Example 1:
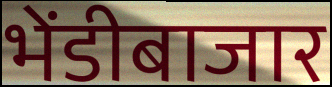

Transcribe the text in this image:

भेंडीबाजार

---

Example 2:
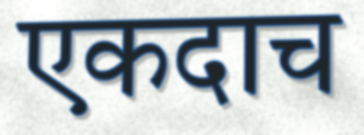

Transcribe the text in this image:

एकदाच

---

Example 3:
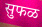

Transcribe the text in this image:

सुफळ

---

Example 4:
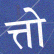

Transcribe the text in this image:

त्तो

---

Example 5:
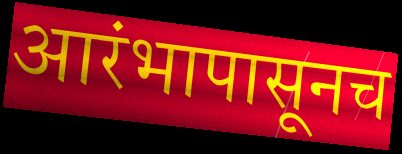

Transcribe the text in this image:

आरंभापासूनच